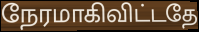
நேரமாகிவிட்டதே